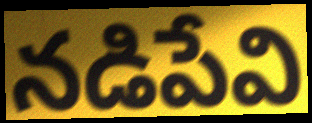
నడిపేవి